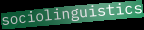
sociolinguistics